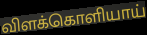
விளக்கொளியாய்